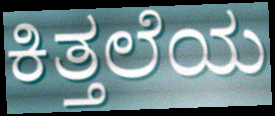
ಕಿತ್ತಲೆಯ